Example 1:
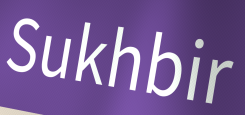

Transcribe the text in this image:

Sukhbir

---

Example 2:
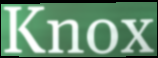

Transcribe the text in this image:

Knox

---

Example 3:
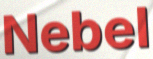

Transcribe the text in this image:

Nebel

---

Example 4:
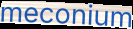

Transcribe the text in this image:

meconium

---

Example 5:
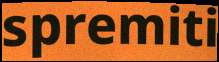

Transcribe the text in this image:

spremiti